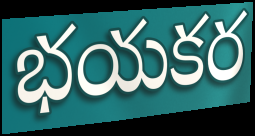
భయకర